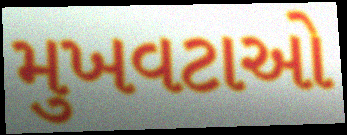
મુખવટાઓ